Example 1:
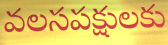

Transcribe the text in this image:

వలసపక్షులకు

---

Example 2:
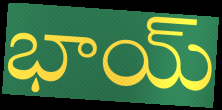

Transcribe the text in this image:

భాయ్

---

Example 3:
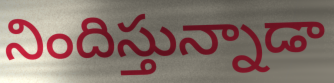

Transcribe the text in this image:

నిందిస్తున్నాడా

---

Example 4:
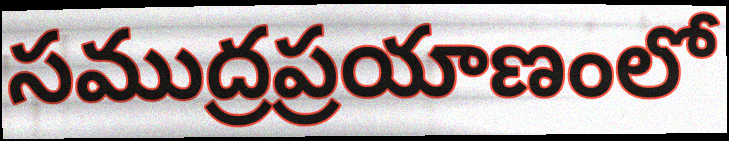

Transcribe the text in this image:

సముద్రప్రయాణంలో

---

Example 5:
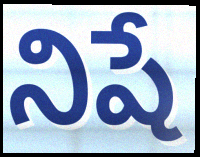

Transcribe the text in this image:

నిషే